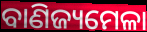
ବାଣିଜ୍ୟମେଳା